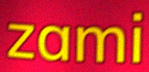
zami